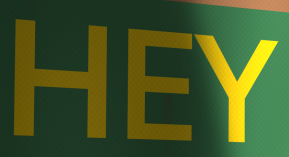
HEY